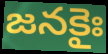
జనకైః